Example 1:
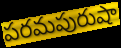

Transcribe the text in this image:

పరమపురుషా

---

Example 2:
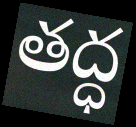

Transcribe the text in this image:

తద్ధ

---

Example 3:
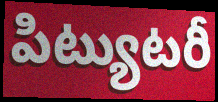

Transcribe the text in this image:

పిట్యుటరీ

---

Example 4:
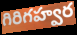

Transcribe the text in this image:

గిరిగహ్వర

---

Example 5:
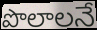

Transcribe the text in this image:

పొలాలనే